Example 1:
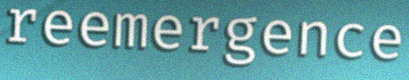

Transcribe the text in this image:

reemergence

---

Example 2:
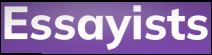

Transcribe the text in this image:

Essayists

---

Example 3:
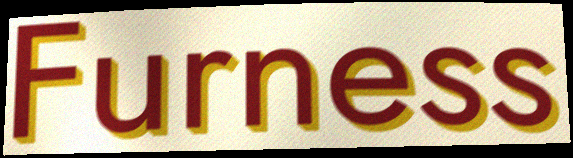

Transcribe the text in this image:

Furness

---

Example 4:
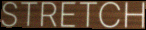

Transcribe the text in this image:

STRETCH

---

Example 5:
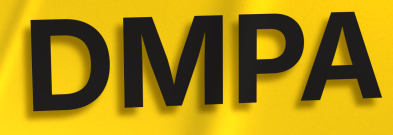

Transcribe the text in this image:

DMPA